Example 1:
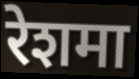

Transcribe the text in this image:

रेशमा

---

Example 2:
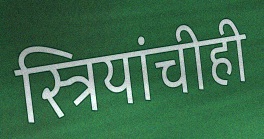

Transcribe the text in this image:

स्त्रियांचीही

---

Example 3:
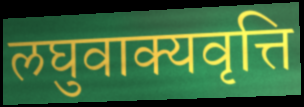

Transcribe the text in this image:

लघुवाक्यवृत्ति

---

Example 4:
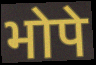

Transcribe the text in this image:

भोपे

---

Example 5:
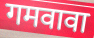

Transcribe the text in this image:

गमवावा